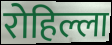
रोहिल्ला